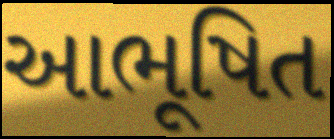
આભૂષિત